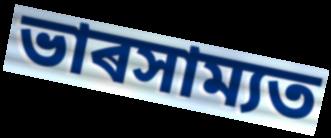
ভাৰসাম্যত